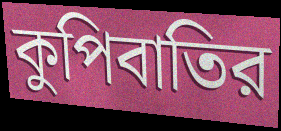
কুপিবাতির